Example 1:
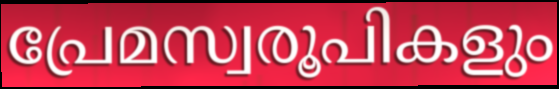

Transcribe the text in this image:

പ്രേമസ്വരൂപികളും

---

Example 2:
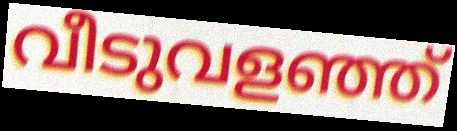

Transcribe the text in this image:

വീടുവളഞ്ഞ്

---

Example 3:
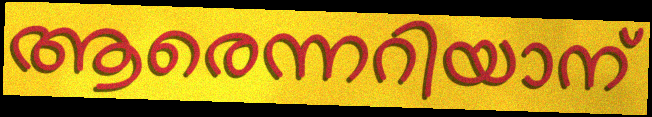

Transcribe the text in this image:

ആരെന്നറിയാന്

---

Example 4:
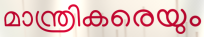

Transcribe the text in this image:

മാന്ത്രികരെയും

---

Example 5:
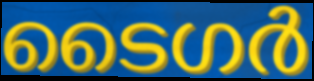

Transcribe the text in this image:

ടൈഗർ